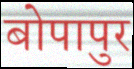
बोपापुर